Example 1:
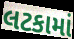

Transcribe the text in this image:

લટકામાં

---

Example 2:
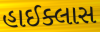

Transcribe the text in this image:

હાઈક્લાસ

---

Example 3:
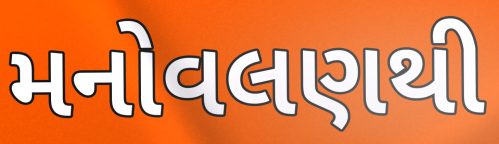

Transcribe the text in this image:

મનોવલણથી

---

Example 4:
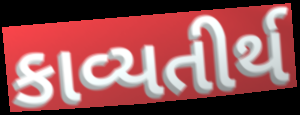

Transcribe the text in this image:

કાવ્યતીર્થ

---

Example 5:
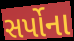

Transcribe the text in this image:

સર્પોના